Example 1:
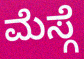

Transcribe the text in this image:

ಮೆಸ್ಗೆ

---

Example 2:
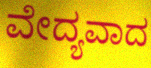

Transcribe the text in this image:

ವೇದ್ಯವಾದ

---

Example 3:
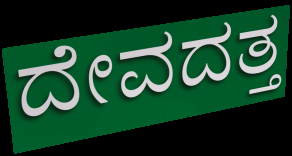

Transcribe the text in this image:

ದೇವದತ್ತ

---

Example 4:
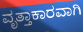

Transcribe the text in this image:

ವೃತ್ತಾಕಾರವಾಗಿ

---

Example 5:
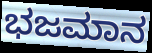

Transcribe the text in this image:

ಭಜಮಾನ